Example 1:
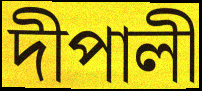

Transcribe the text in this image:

দীপালী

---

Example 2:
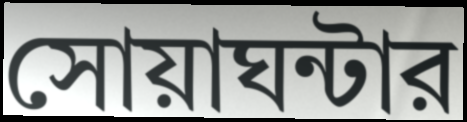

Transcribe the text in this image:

সোয়াঘন্টার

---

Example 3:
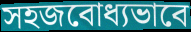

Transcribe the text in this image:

সহজবোধ্যভাবে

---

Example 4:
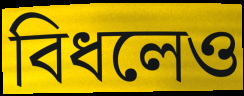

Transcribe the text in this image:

বিধলেও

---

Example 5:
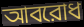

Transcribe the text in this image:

আবরোধ